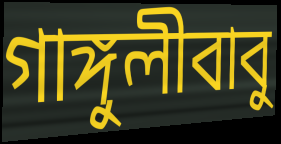
গাঙ্গুলীবাবু